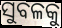
ସୁବଳକୁ